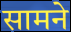
सामने